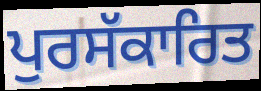
ਪੁਰਸੱਕਾਰਿਤ